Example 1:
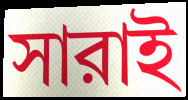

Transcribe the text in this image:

সারাই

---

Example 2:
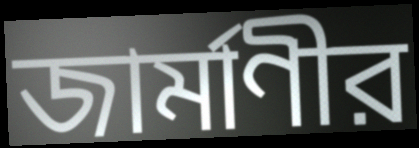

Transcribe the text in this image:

জার্মাণীর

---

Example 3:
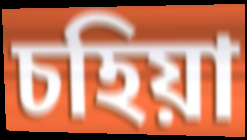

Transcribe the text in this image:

চহিয়া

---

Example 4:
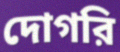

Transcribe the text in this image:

দোগরি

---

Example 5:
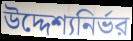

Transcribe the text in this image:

উদ্দেশ্যনির্ভর